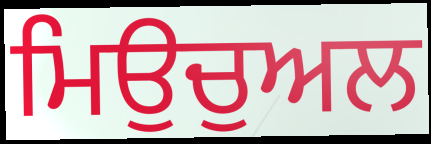
ਮਿਉਚੁਅਲ